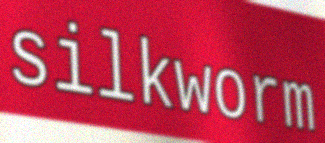
silkworm